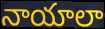
నాయాలా